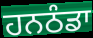
ਹਨਠੰਡਾ